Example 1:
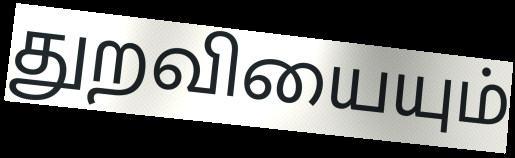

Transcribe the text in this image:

துறவியையும்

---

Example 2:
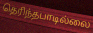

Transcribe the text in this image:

தெரிந்தபாடில்லை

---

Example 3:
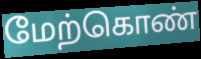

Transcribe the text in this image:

மேற்கொண்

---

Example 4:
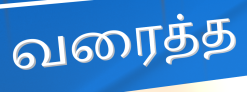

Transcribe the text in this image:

வரைத்த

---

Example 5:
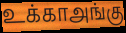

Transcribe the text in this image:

உக்காஅங்கு